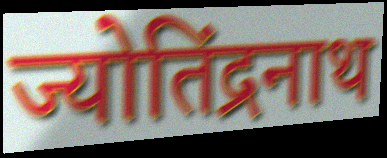
ज्योतिंद्रनाथ